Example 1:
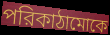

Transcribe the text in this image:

পরিকাঠামোকে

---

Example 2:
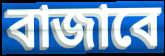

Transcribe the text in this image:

বাজাবে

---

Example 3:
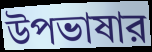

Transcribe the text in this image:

উপভাষার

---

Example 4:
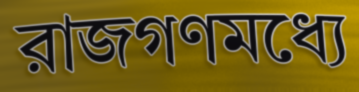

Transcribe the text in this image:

রাজগণমধ্যে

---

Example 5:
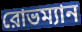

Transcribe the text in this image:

রোভম্যান